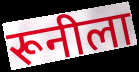
रूनीला